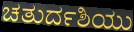
ಚತುರ್ದಶಿಯು